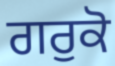
ਗਰੁਕੋ